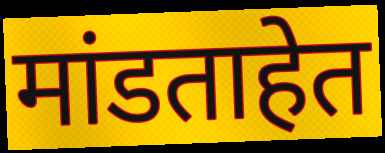
मांडताहेत